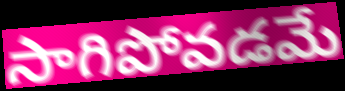
సాగిపోవడమే